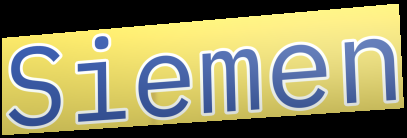
Siemen